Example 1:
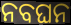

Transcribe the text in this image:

ନବଘନ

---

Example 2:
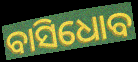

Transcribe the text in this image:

ବାସିଧୋବ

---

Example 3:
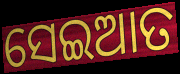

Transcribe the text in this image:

ସେଇଆତ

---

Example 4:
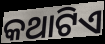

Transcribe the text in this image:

କଥାଟିଏ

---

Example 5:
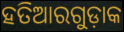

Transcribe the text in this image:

ହତିଆରଗୁଡ଼ାକ